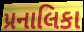
પ્રનાલિકા